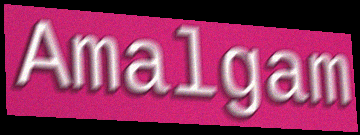
Amalgam